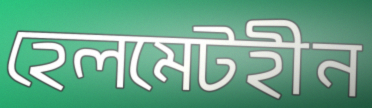
হেলমেটহীন